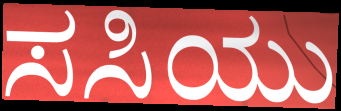
ಸಸಿಯು